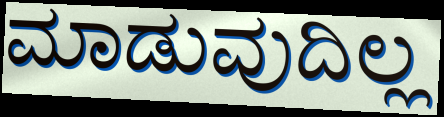
ಮಾಡುವುದಿಲ್ಲ